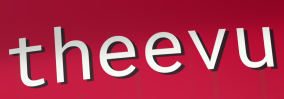
theevu